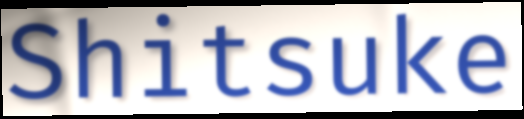
Shitsuke